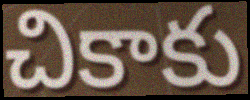
చికాకు